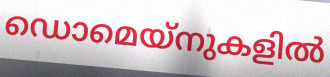
ഡൊമെയ്നുകളിൽ